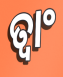
ତ୍ୱାଂ